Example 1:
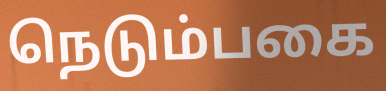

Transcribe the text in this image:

நெடும்பகை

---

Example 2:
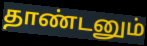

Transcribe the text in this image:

தாண்டனும்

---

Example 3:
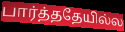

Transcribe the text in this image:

பார்த்ததேயில்ல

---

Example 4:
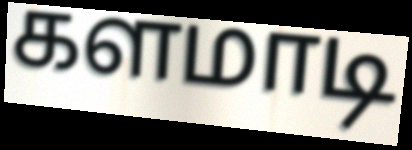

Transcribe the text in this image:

களமாடி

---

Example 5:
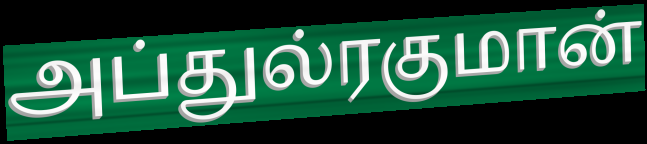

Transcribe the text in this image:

அப்துல்ரகுமான்